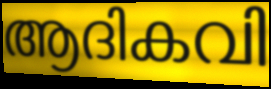
ആദികവി